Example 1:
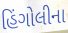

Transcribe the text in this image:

હિંગોલીના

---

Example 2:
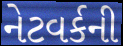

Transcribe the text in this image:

નેટવર્કની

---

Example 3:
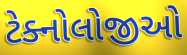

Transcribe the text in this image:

ટેક્નોલોજીઓ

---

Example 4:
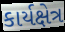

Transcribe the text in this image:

કાર્યક્ષેત્ર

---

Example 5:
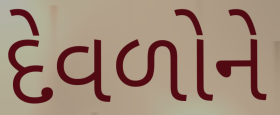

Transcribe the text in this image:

દેવળોને